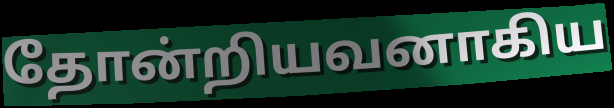
தோன்றியவனாகிய